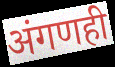
अंगणही